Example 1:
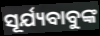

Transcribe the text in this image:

ସୂର୍ଯ୍ୟବାବୁଙ୍କ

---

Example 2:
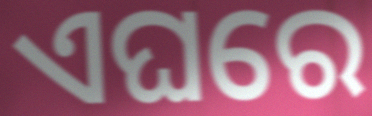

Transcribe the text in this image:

ଏଘରେ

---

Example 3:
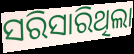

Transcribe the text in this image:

ସରିସାରିଥିଲା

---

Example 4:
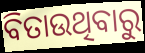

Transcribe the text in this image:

ବିତାଉଥିବାରୁ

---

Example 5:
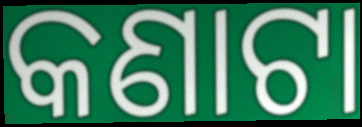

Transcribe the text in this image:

କଣାଟା